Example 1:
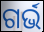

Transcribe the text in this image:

ଗର୍ଭ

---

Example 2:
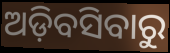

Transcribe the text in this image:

ଅଡ଼ିବସିବାରୁ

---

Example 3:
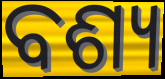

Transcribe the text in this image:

ବଶ୍ୟ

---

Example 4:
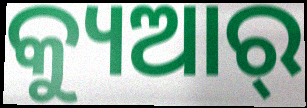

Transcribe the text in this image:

କ୍ୟୁଆର୍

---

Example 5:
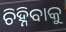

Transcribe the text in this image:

ଚିହ୍ନିବାକୁ